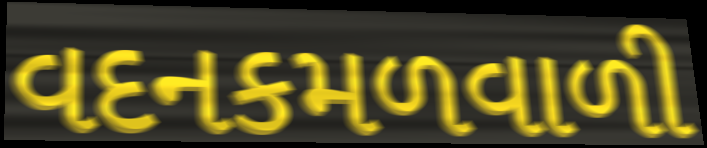
વદનકમળવાળી